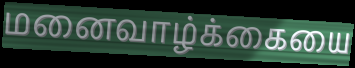
மனைவாழ்க்கையை